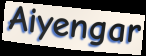
Aiyengar